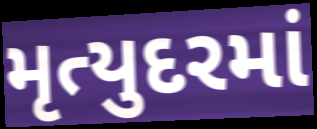
મૃત્યુદરમાં